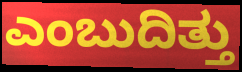
ಎಂಬುದಿತ್ತು